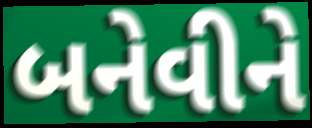
બનેવીને